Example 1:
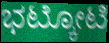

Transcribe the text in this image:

ಭಟ್ಕೋಟಿ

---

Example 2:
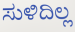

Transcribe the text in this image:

ಸುಳಿದಿಲ್ಲ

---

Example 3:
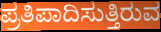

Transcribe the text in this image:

ಪ್ರತಿಪಾದಿಸುತ್ತಿರುವ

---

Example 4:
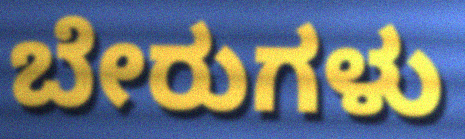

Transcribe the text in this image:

ಬೇರುಗಳು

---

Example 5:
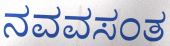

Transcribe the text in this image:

ನವವಸಂತ